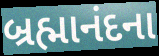
બ્રહ્માનંદના